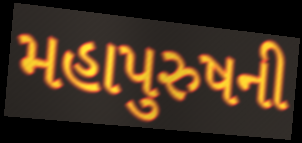
મહાપુરુષની